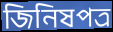
জিনিষপত্র